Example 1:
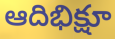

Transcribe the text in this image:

ఆదిభిక్షూ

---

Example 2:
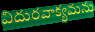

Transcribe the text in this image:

విదురవాక్యమను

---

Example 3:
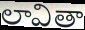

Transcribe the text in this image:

లావితా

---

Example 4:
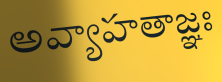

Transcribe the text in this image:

అవ్యాహతాజ్ఞః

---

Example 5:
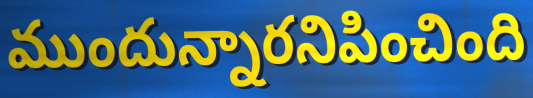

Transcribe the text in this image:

ముందున్నారనిపించింది